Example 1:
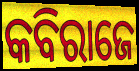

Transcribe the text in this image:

କବିରାଜେ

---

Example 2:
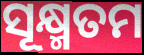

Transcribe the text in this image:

ସୂକ୍ଷ୍ମତମ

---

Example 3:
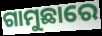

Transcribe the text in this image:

ଗାମୁଛାରେ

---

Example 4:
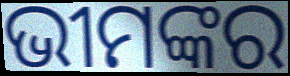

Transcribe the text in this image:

ଭୀମଙ୍କର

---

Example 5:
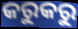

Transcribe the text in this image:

କରୁକରୁ